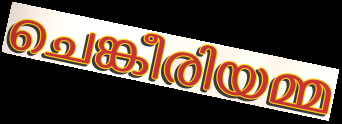
ചെങ്കീരിയമ്മ